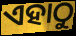
ଏହାଠୁ